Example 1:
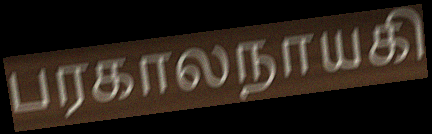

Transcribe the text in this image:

பரகாலநாயகி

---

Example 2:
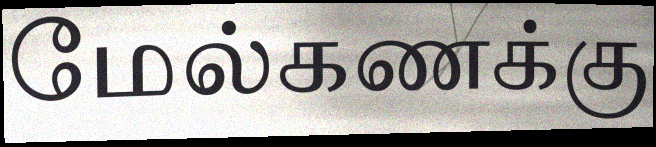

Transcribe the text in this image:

மேல்கணக்கு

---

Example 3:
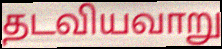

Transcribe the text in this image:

தடவியவாறு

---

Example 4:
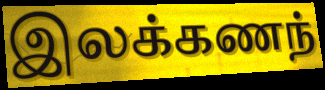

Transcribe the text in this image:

இலக்கணந்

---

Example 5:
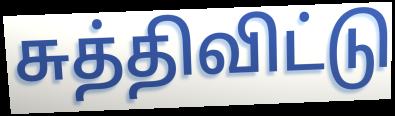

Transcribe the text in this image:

சுத்திவிட்டு